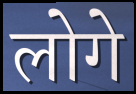
लोगे